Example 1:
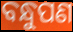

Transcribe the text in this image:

ବନ୍ଧୁପଣ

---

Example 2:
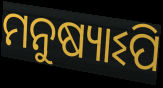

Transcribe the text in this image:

ମନୁଷ୍ୟାଽପି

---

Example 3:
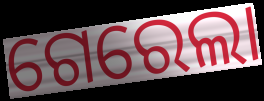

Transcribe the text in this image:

ଗେରେଲା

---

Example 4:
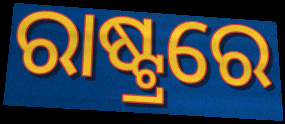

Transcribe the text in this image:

ରାଷ୍ଟ୍ରରେ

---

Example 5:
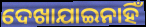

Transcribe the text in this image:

ଦେଖାଯାଇନାହିଁ